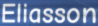
Eliasson